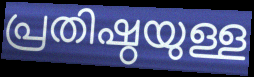
പ്രതിഷ്ഠയുള്ള